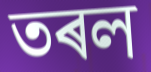
তৰল